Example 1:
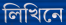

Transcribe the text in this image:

লিখিনে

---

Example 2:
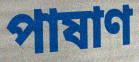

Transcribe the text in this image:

পাষাণ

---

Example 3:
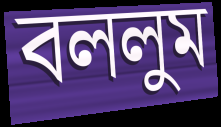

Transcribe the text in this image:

বললুম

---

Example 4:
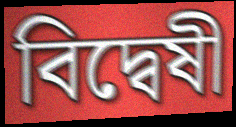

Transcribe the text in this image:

বিদ্বেষী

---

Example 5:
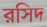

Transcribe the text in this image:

রসিদ